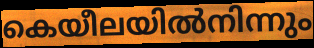
കെയീലയിൽനിന്നും